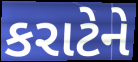
કરાટેને